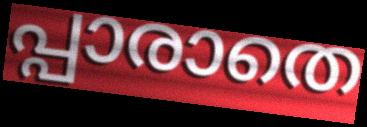
പ്പാരാതെ